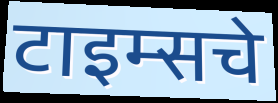
टाइम्सचे